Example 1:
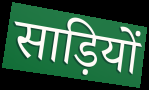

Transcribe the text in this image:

साड़ियों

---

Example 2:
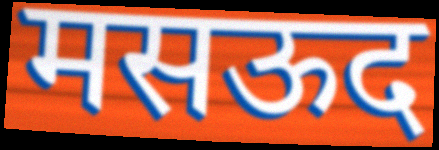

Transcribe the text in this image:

मसऊद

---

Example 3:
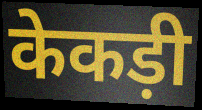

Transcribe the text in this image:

केकड़ी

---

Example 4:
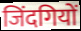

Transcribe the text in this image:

जिंदगियों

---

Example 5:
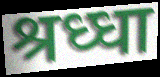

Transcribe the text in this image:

श्रध्धा